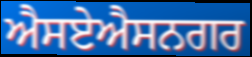
ਐਸਏਐਸਨਗਰ